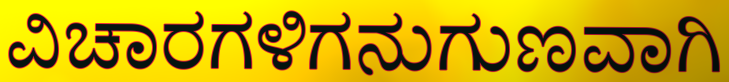
ವಿಚಾರಗಳಿಗನುಗುಣವಾಗಿ